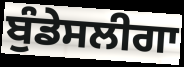
ਬੁੰਡੇਸਲੀਗਾ